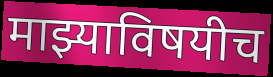
माझ्याविषयीच